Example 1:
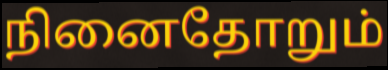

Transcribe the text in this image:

நினைதோறும்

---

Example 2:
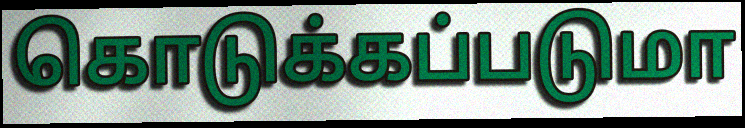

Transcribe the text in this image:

கொடுக்கப்படுமா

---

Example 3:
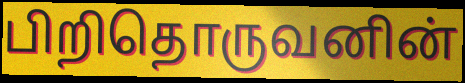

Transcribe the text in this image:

பிறிதொருவனின்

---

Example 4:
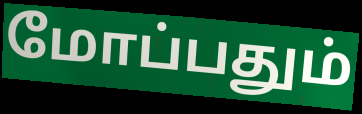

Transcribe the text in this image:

மோப்பதும்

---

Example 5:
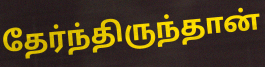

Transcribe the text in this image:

தேர்ந்திருந்தான்